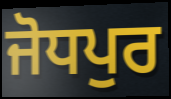
ਜੋਧਪੁਰ